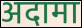
अदामा